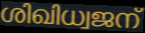
ശിഖിധ്വജന്